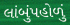
લાંબુંપહોળું